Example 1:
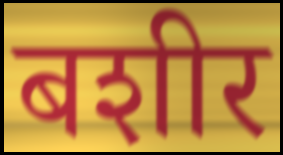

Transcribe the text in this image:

बशीर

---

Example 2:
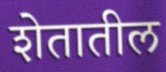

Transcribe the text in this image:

शेतातील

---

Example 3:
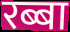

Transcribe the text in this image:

रब्बा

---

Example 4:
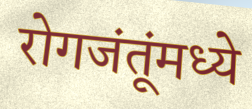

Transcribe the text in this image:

रोगजंतूंमध्ये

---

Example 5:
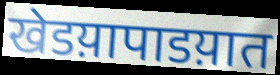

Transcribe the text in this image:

खेडय़ापाडय़ात